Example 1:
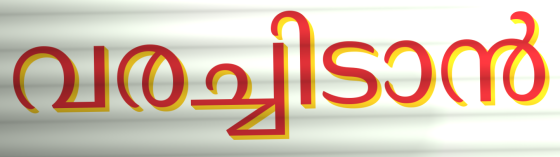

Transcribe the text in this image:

വരച്ചിടാൻ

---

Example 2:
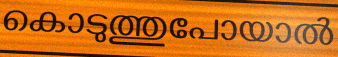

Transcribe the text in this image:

കൊടുത്തുപോയാൽ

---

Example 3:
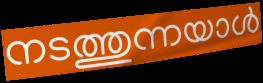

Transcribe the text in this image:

നടത്തുന്നയാൾ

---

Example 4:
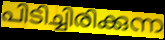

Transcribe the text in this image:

പിടിച്ചിരിക്കുന്ന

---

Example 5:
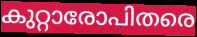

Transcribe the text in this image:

കുറ്റാരോപിതരെ